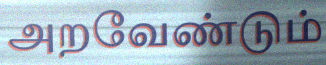
அறவேண்டும்